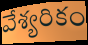
వేశ్యరికం